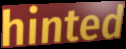
hinted